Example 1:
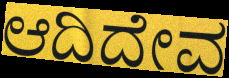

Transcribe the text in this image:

ಆದಿದೇವ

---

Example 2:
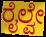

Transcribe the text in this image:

ರೈಲ್ವೇ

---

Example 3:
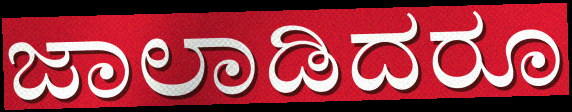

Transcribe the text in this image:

ಜಾಲಾಡಿದರೂ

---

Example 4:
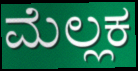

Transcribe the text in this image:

ಮೆಲ್ಲಕ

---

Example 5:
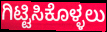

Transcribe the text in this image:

ಗಿಟ್ಟಿಸಿಕೊಳ್ಳಲು